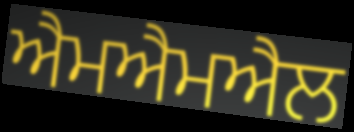
ਐਮਐਮਐਲ